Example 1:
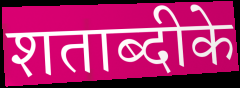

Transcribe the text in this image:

शताब्दीके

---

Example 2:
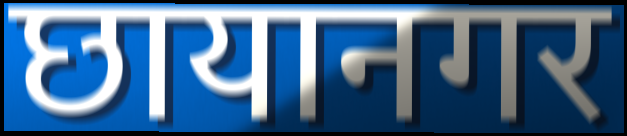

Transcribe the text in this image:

छायानगर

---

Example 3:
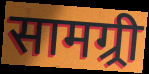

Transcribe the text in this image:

सामग्र्री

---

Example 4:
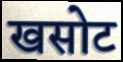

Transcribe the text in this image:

खसोट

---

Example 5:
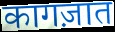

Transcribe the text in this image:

कागज़ात